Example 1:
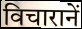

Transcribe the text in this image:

विचारानें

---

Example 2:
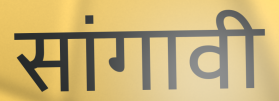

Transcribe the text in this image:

सांगावी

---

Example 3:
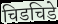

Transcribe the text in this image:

चिडचिडे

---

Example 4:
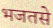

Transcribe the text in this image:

भजतसे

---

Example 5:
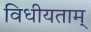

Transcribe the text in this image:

विधीयताम्